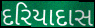
દરિયાદાસ